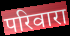
परिवारा